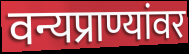
वन्यप्राण्यांवर